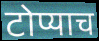
टोप्याच